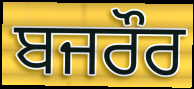
ਬਜਰੌਰ